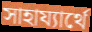
সাহায্যাৰ্থে